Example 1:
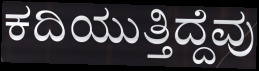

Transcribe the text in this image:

ಕದಿಯುತ್ತಿದ್ದೆವು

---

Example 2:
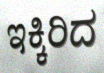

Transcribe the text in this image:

ಇಕ್ಕಿರಿದ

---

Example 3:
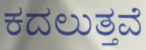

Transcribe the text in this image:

ಕದಲುತ್ತವೆ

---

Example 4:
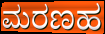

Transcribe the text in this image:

ಮರಣಹ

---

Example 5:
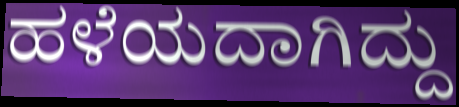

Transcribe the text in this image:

ಹಳೆಯದಾಗಿದ್ದು